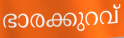
ഭാരക്കുറവ്